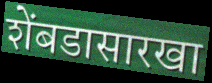
शेंबडासारखा